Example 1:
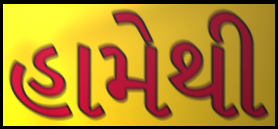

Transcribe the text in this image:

હામેથી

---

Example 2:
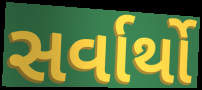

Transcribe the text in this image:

સર્વાર્થો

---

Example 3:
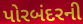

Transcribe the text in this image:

પોરબંદરની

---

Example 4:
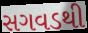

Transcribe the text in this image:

સગવડથી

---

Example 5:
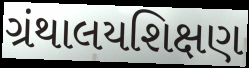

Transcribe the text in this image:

ગ્રંથાલયશિક્ષણ